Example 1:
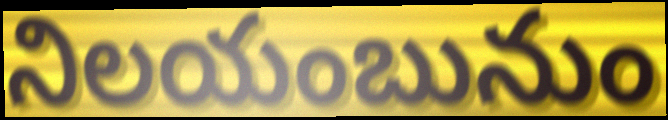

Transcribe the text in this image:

నిలయంబునుం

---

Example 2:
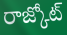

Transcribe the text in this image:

రాజ్కోట్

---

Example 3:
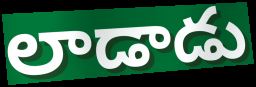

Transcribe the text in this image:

లాడాడు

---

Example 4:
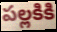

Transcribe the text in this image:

పల్లకికి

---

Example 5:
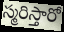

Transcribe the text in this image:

స్మరిస్తారో